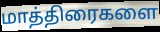
மாத்திரைகளை